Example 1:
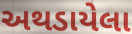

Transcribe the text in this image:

અથડાયેલા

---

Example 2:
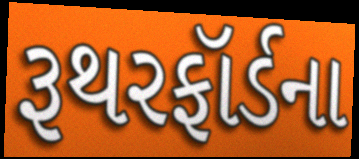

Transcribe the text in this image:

રૂથરફૉર્ડના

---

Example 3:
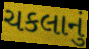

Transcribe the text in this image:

ચકલાનું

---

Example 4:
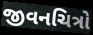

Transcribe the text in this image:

જીવનચિત્રો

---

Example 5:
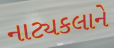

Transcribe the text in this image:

નાટ્યકલાને